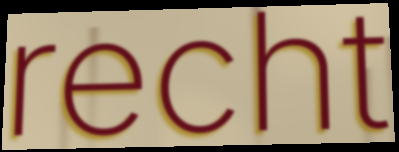
recht